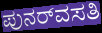
ಪುನರ್‌ವಸತಿ